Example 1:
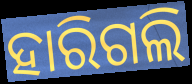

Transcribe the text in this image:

ହାରିଗଲି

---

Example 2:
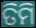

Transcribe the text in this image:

ତିମି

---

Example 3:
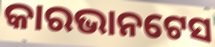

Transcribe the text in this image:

କାରଭାନଟେସ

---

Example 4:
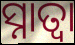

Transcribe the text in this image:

ସ୍ନାତ୍ବା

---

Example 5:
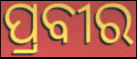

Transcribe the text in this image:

ପ୍ରବୀର